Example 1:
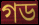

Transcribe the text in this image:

গড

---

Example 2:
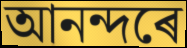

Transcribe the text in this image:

আনন্দৰে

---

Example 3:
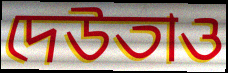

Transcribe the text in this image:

দেউতাও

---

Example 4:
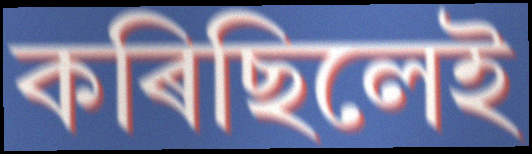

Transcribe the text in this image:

কৰিছিলেই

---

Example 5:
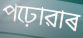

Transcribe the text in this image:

পঢ়োৱাৰ